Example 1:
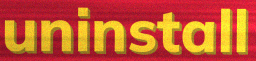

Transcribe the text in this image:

uninstall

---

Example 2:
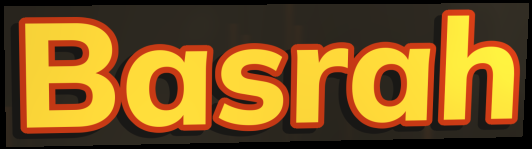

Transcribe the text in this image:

Basrah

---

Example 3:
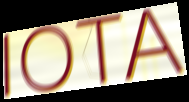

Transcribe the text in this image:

IOTA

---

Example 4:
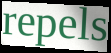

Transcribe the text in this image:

repels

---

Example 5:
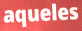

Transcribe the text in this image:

aqueles